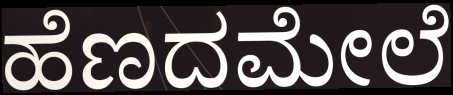
ಹೆಣದಮೇಲೆ